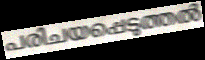
പരിചയപ്പെടുത്തൽ